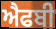
ਐਫਬੀ